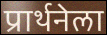
प्रार्थनेला